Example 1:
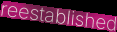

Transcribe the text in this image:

reestablished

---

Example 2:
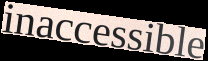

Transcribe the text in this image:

inaccessible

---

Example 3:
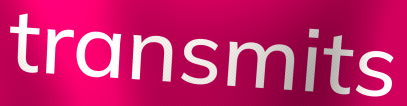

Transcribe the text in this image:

transmits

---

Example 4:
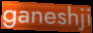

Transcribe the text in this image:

ganeshji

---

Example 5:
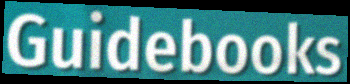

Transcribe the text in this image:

Guidebooks